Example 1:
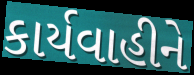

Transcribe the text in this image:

કાર્યવાહીને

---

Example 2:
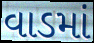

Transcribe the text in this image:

વાડમાં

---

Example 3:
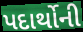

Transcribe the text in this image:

પદાર્થોની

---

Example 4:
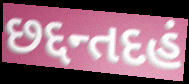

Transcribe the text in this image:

છદ્દન્તદહં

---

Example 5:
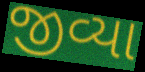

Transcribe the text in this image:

જીવ્યા